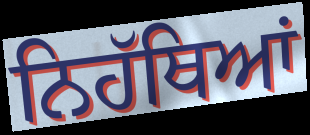
ਨਿਹੱਥਿਆਂ